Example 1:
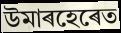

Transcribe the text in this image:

উমাৰহেৰেত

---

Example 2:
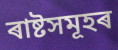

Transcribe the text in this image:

ৰাষ্টসমূহৰ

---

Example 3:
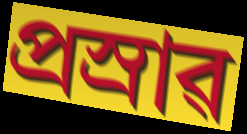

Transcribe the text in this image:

প্ৰস্ৰাৱ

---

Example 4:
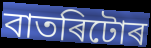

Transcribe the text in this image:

বাতৰিটোৰ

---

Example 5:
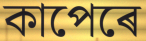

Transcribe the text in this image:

কাপেৰে